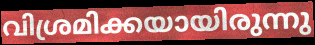
വിശ്രമിക്കയായിരുന്നു